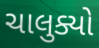
ચાલુક્યો